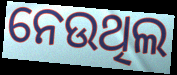
ନେଉଥିଲ